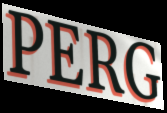
PERG